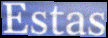
Estas